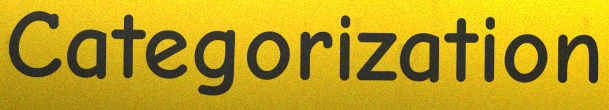
Categorization